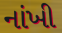
નાંખી